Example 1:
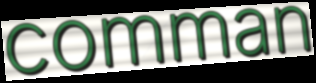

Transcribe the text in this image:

comman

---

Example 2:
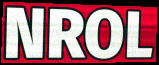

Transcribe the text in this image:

NROL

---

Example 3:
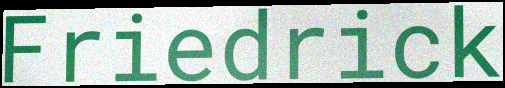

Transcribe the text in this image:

Friedrick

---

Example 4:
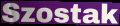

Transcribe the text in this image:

Szostak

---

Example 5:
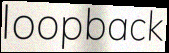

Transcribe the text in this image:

loopback